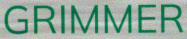
GRIMMER